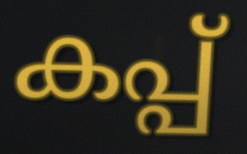
കപ്പ്